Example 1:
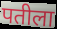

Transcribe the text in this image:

पतीला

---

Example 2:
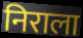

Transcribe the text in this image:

निराला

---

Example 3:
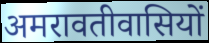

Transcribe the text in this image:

अमरावतीवासियों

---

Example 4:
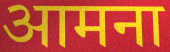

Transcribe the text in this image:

आमना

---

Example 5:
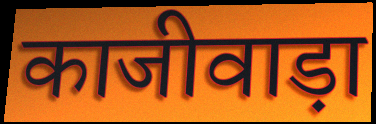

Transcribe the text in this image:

काजीवाड़ा